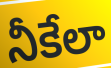
నీకేలా